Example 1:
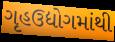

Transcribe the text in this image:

ગૃહઉદ્યોગમાંથી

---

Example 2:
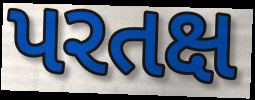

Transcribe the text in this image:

પરતક્ષ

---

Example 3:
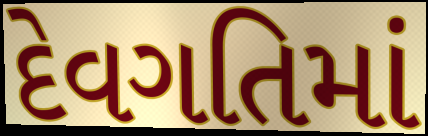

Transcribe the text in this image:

દેવગતિમાં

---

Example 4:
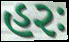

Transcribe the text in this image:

હરઃ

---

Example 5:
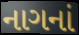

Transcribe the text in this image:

નાગનાં